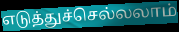
எடுத்துச்செல்லலாம்